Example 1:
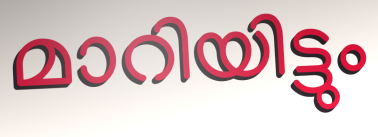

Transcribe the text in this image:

മാറിയിട്ടും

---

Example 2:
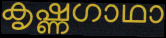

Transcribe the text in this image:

കൃഷ്ണഗാഥാ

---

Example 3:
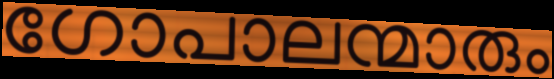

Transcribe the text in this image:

ഗോപാലന്മാരും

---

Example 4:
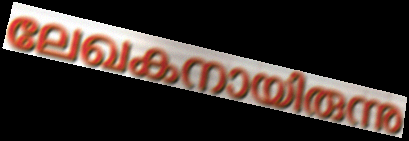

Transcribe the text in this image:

ലേഖകനായിരുന്നു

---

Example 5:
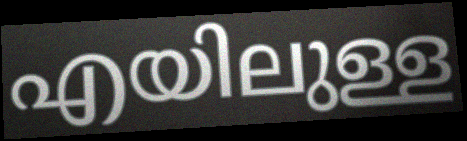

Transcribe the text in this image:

എയിലുള്ള